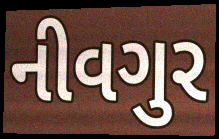
નીવગુર